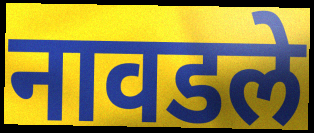
नावडले